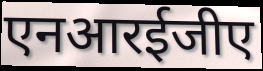
एनआरईजीए